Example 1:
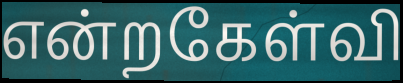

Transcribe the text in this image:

என்றகேள்வி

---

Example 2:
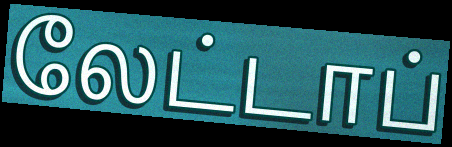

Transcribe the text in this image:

லேட்டாப்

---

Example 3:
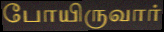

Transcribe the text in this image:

போயிருவார்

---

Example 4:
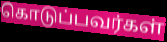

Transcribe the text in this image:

கொடுப்பவர்கள்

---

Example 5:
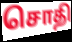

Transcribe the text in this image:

சொதி